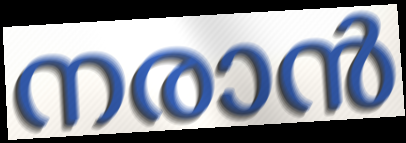
നരാൻ